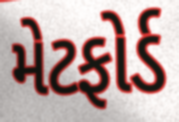
મેટફોર્ડ